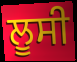
ਲੂਸੀ